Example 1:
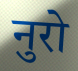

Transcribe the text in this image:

नुरो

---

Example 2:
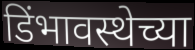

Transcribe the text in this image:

डिंभावस्थेच्या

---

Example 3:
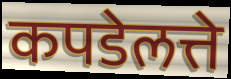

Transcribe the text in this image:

कपडेलत्ते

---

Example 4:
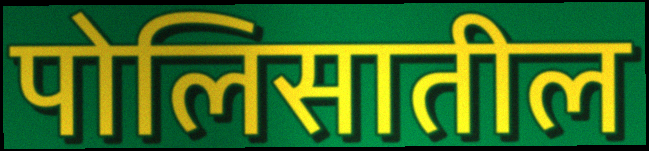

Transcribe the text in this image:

पोलिसातील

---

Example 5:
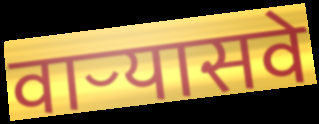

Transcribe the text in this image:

वाऱ्यासवे